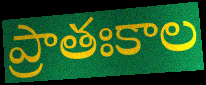
ప్రాతఃకాల